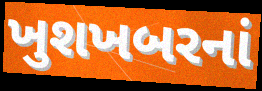
ખુશખબરનાં